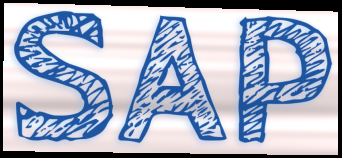
SAP